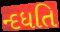
ન્દધતિ